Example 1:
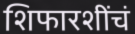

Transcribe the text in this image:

शिफारशींचं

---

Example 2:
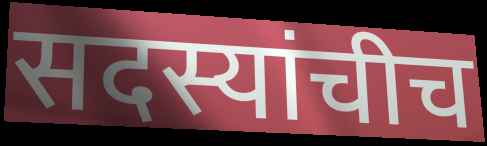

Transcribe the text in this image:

सदस्यांचीच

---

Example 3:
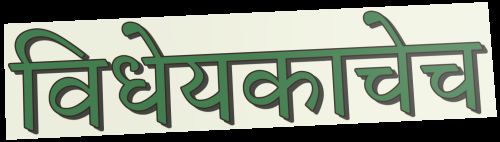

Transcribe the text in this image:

विधेयकाचेच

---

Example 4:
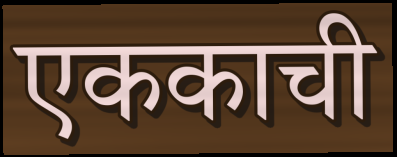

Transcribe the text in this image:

एककाची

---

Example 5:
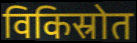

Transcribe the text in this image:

विकिस्रोत